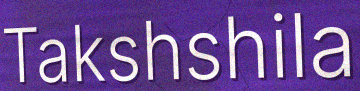
Takshshila